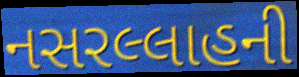
નસરલ્લાહની